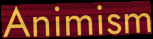
Animism